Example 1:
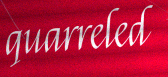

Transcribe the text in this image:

quarreled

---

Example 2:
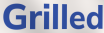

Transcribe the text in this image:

Grilled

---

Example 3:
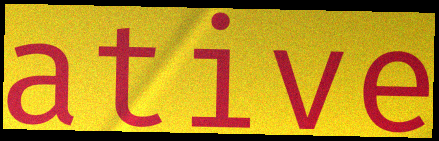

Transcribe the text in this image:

ative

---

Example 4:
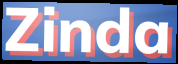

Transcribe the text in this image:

Zinda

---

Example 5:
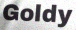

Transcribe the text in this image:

Goldy